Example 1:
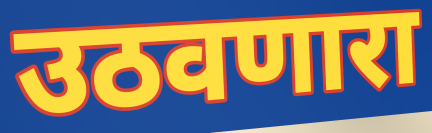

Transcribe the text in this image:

उठवणारा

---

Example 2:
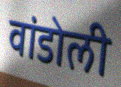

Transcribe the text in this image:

वांडोली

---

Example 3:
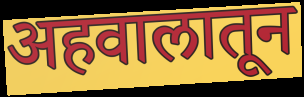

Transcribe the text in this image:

अहवालातून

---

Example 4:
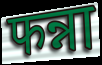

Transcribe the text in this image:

फन्ना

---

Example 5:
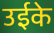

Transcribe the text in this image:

उईके